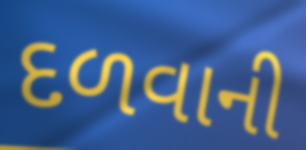
દળવાની